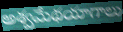
అశ్వమేథయాగాలు